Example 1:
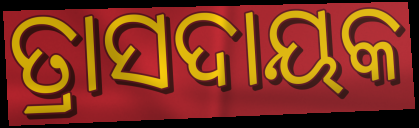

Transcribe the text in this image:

ତ୍ରାସଦାୟକ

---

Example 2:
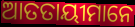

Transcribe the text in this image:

ଆତତାୟୀମାନେ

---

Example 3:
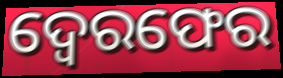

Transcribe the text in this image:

ଦ୍ବେରଫେର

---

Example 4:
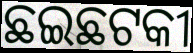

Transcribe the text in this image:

ଛଇଛଟକୀ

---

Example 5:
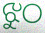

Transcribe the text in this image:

ଝୁଠ